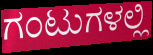
ಗಂಟುಗಳಲ್ಲಿ